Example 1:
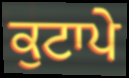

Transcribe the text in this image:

ਕੁਟਾਪੇ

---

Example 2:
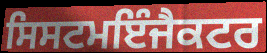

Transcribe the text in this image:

ਸਿਸਟਮਇੰਜੈਕਟਰ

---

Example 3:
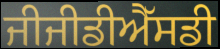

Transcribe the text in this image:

ਜੀਜੀਡੀਐੱਸਡੀ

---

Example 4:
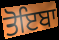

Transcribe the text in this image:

ਤੋਇਬਾ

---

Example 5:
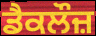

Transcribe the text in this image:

ਡੈਕਲੌਜ਼